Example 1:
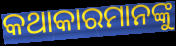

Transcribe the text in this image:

କଥାକାରମାନଙ୍କୁ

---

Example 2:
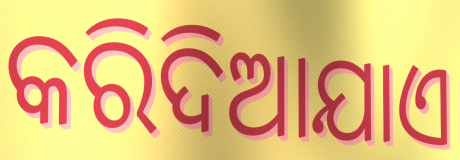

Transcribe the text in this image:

କରିଦିଆଯାଏ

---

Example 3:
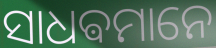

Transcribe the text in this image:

ସାଧଵମାନେ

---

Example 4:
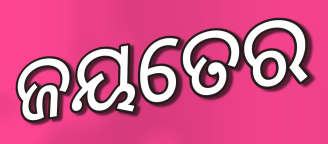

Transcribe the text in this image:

ଜୟତେର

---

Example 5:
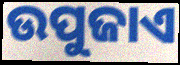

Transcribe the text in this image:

ଉପୁଜାଏ